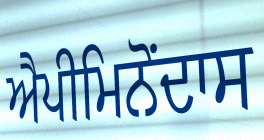
ਐਪੀਮਿਨੋਂਦਾਸ